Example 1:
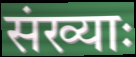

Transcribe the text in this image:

संख्याः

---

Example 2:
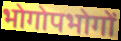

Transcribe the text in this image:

भोगोपभोगों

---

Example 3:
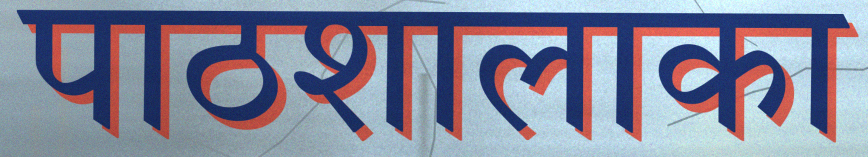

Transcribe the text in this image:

पाठशालाका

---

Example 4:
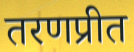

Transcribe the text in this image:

तरणप्रीत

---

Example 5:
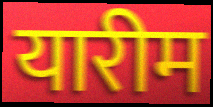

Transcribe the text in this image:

यारीम